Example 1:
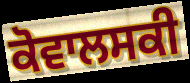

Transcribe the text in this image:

ਕੋਵਾਲਸਕੀ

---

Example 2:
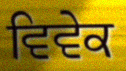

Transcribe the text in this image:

ਵਿਵੇਕ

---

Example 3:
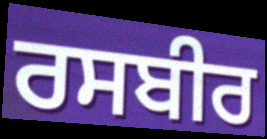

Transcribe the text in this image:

ਰਸਬੀਰ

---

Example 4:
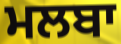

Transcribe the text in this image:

ਮਲਬਾ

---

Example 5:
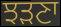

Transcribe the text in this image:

ਝੜਣਾ